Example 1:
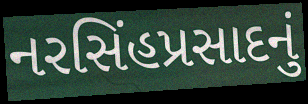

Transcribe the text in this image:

નરસિંહપ્રસાદનું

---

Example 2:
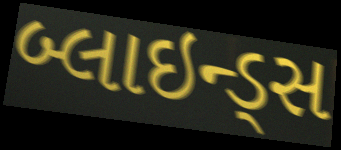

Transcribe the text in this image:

બ્લાઇન્ડ્સ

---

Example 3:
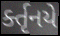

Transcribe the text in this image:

ર્ક્તૃનયે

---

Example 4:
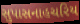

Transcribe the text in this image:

સુપાસનાહચરિય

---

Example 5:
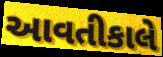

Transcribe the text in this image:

આવતીકાલે